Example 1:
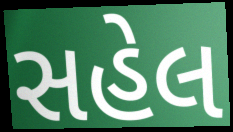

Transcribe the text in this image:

સહેલ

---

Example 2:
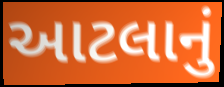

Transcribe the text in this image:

આટલાનું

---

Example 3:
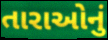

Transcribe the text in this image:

તારાઓનું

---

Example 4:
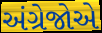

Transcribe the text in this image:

અંગ્રેજોએ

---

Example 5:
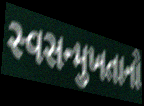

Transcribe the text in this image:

સ્વસન્મુખતાનો